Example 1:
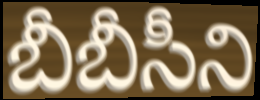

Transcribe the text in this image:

బీబీసీని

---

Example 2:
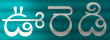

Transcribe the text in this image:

ఊరెడి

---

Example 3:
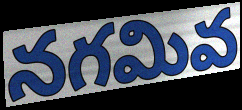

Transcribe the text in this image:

నగమివ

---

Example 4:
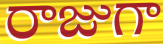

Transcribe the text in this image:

రాజుగా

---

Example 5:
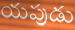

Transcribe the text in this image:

యపుడు